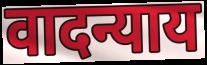
वादन्याय